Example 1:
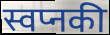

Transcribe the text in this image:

स्वप्नकी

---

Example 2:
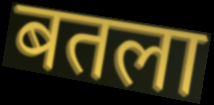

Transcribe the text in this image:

बतला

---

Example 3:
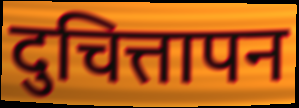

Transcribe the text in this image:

दुचित्तापन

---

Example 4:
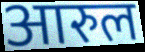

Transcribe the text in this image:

आरुल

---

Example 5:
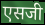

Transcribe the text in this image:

एसजी